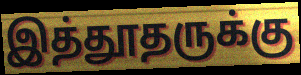
இத்தூதருக்கு